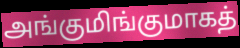
அங்குமிங்குமாகத்